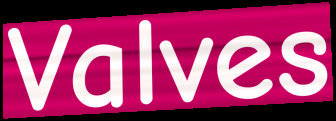
Valves